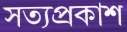
সত্যপ্ৰকাশ